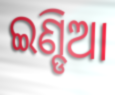
ଇଣ୍ଡିଆ